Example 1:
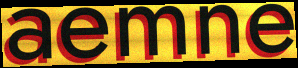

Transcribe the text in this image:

aemne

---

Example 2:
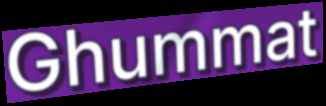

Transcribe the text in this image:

Ghummat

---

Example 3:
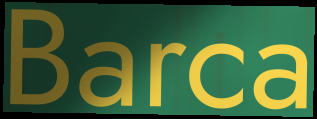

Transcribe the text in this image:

Barca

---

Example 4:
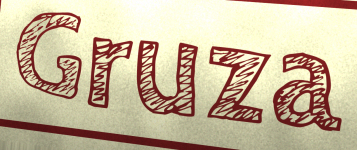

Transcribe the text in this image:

Gruza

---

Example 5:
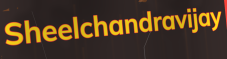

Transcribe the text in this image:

Sheelchandravijay